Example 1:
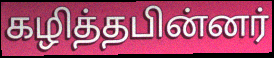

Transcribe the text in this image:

கழித்தபின்னர்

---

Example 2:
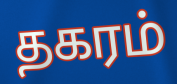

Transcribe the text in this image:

தகரம்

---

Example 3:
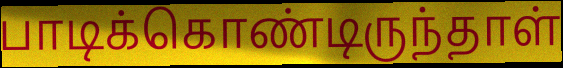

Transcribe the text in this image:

பாடிக்கொண்டிருந்தாள்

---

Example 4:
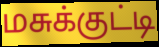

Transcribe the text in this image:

மசுக்குட்டி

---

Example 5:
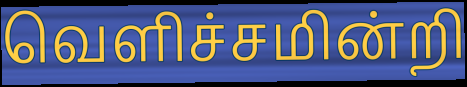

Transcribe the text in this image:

வெளிச்சமின்றி